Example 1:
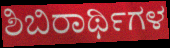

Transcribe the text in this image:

ಶಿಬಿರಾರ್ಥಿಗಳ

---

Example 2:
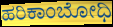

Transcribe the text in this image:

ಹರಿಕಾಂಬೋಧಿ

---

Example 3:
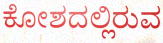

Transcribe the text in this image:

ಕೋಶದಲ್ಲಿರುವ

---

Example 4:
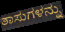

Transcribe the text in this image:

ತಾಸುಗಳನ್ನು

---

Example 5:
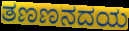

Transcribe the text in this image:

ತಣಣನದಯ